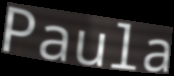
Paula